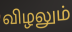
விழலும்